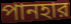
পানহার